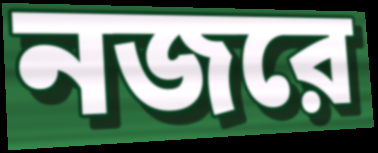
নজরে